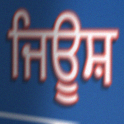
ਜਿਊਸ਼